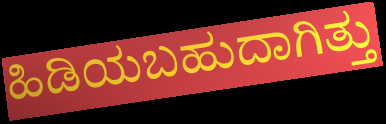
ಹಿಡಿಯಬಹುದಾಗಿತ್ತು